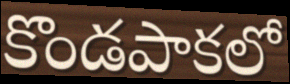
కొండపాకలో